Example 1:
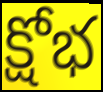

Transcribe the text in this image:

క్షోభ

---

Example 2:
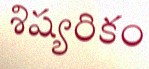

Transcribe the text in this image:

శిష్యరికం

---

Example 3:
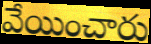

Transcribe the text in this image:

వేయించారు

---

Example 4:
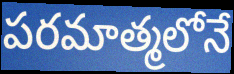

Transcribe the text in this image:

పరమాత్మలోనే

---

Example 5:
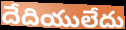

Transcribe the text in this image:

దేదియులేదు